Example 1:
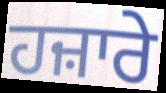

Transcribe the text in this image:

ਹਜ਼ਾਰੇ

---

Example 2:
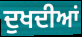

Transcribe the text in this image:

ਦੁਖਦੀਆਂ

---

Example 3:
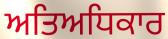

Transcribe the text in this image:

ਅਤਿਅਧਿਕਾਰ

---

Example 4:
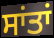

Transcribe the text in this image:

ਸਾਂਤਾਂ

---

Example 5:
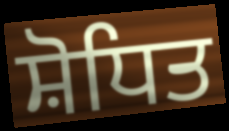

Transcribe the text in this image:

ਸ਼ੋਧਿਤ